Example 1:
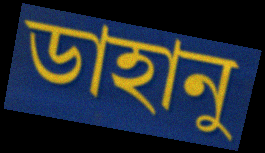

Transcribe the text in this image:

ডাহানু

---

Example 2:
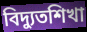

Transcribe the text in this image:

বিদ্যুতশিখা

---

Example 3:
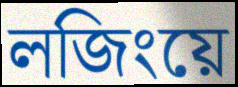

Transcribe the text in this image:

লজিংয়ে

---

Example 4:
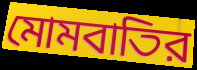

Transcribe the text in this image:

মোমবাতির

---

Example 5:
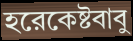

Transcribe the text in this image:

হরেকেষ্টবাবু